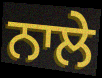
ਨਾਲੇ